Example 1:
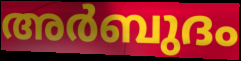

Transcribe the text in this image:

അർബുദം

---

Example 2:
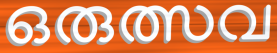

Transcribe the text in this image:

ഒരുത്സവ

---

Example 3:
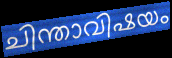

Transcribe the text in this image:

ചിന്താവിഷയം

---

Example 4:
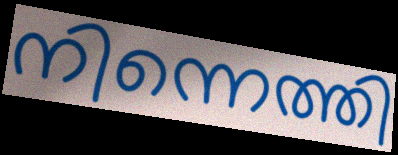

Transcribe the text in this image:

നിന്നെത്തി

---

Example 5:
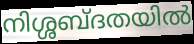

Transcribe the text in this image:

നിശ്ശബ്ദതയിൽ